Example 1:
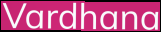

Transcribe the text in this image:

Vardhana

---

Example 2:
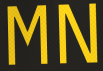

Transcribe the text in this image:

MN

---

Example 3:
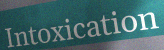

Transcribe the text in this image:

Intoxication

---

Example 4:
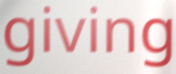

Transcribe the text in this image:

giving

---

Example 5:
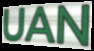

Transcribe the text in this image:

UAN